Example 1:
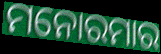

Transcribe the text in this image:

ମନୋରମାର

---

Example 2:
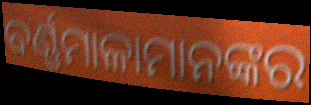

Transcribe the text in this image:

ବର୍ଣ୍ଣମାଳାମାନଙ୍କର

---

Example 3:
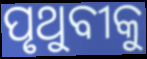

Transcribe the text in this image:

ପୃଥୁବୀକୁ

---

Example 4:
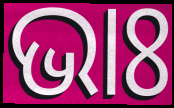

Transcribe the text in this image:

ଭାଃ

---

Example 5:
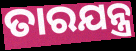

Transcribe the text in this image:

ତାରଯନ୍ତ୍ର